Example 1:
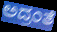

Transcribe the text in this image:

ಅದ್ರಂತೆ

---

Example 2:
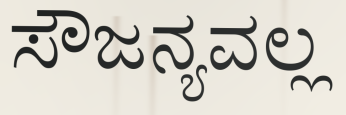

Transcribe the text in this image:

ಸೌಜನ್ಯವಲ್ಲ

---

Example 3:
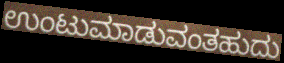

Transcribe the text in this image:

ಉಂಟುಮಾಡುವಂತಹುದು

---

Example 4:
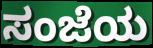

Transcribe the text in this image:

ಸಂಜೆಯ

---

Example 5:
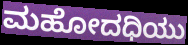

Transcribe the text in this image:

ಮಹೋದಧಿಯು